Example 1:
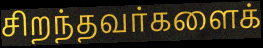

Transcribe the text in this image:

சிறந்தவர்களைக்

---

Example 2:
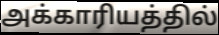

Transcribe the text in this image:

அக்காரியத்தில்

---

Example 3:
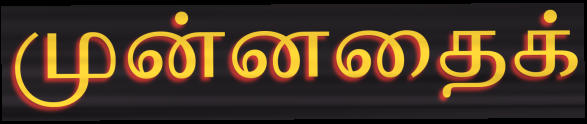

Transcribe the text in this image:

முன்னதைக்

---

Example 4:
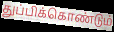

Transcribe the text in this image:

துப்பிக்கொண்டும்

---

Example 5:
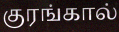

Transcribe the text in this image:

குரங்கால்